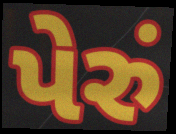
પેરું